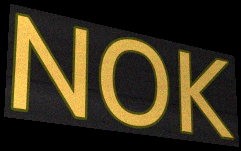
NOK